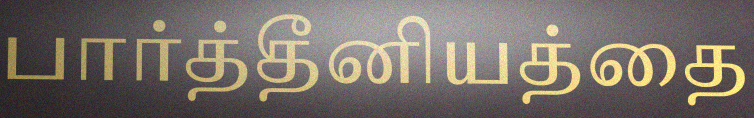
பார்த்தீனியத்தை